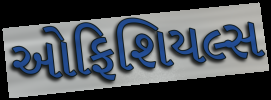
ઓફિશિયલ્સ